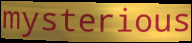
mysterious